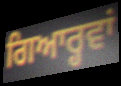
ਗਿਆਰ੍ਹਵਾਂ